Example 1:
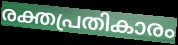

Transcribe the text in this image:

രക്തപ്രതികാരം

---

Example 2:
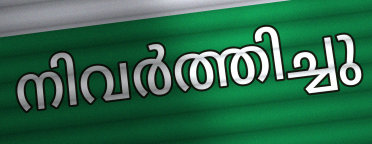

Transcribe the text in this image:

നിവർത്തിച്ചു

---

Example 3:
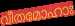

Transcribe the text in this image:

വീതമോഹാഃ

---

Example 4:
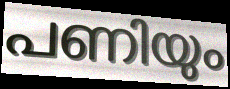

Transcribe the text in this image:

പണിയും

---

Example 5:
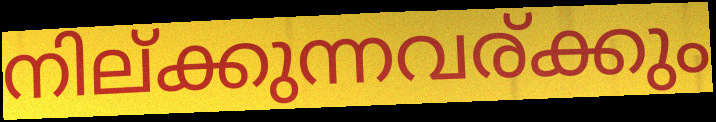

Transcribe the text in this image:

നില്ക്കുന്നവര്ക്കും